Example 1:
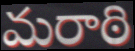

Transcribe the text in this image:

మరాఠి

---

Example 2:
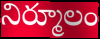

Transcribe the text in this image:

నిర్మూలం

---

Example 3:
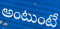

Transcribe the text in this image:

అంటుంటే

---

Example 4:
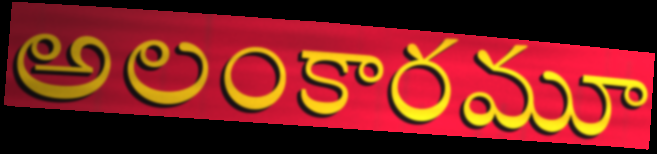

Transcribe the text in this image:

అలంకారమూ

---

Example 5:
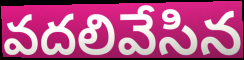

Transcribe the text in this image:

వదలివేసిన